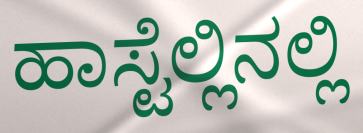
ಹಾಸ್ಟೆಲ್ಲಿನಲ್ಲಿ